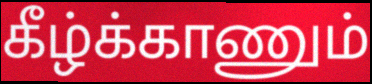
கீழ்க்காணும்